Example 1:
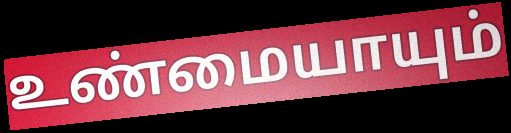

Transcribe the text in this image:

உண்மையாயும்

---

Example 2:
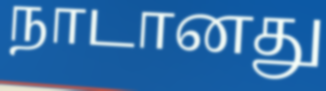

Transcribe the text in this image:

நாடானது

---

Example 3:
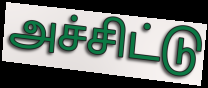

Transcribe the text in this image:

அச்சிட்டு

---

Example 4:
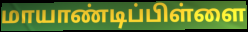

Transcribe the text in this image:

மாயாண்டிப்பிள்ளை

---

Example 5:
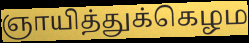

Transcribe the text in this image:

ஞாயித்துக்கெழம